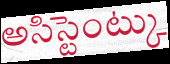
అసిస్టెంట్కు